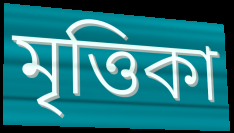
মৃত্তিকা